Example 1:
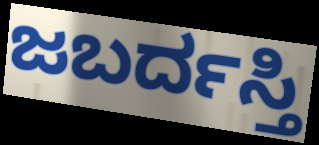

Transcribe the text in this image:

ಜಬರ್ದಸ್ತಿ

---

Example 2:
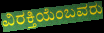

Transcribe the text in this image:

ವಿರಕ್ತಿಯೆಂಬವರು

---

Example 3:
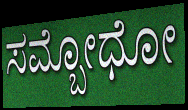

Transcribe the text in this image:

ಸಮ್ಬೋಧೋ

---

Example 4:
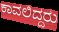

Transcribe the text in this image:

ಕಾವಲಿದ್ದರು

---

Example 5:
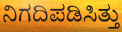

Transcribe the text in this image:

ನಿಗದಿಪಡಿಸಿತ್ತು